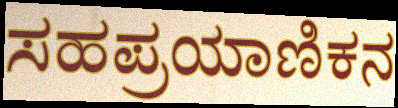
ಸಹಪ್ರಯಾಣಿಕನ